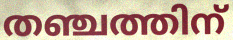
തഞ്ചത്തിന്